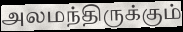
அலமந்திருக்கும்